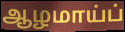
ஆழமாய்ப்